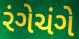
રંગેચંગે